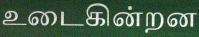
உடைகின்றன